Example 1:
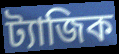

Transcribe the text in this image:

ট্যাজিক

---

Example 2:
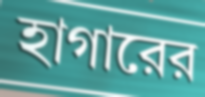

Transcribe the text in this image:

হাগারের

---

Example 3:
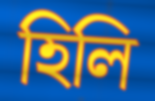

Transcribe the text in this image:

হিলি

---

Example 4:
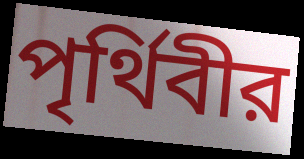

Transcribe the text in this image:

পৃর্থিবীর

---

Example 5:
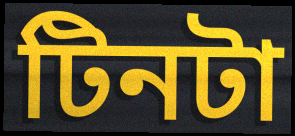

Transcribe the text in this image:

টিনটা